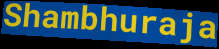
Shambhuraja